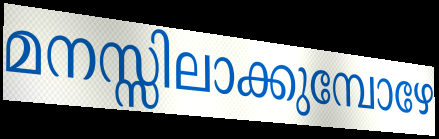
മനസ്സിലാക്കുമ്പോഴേ